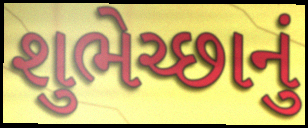
શુભેચ્છાનું